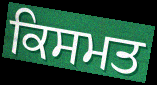
ਕਿਸਮਤ